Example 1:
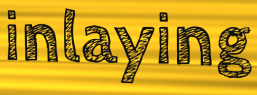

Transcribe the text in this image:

inlaying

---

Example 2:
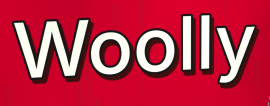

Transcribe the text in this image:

Woolly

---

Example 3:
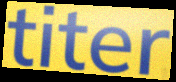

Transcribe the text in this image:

titer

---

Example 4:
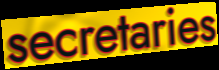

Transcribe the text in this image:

secretaries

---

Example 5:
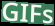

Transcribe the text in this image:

GIFs